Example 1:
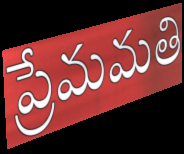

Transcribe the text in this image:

ప్రేమమతి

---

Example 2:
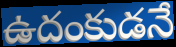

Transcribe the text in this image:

ఉదంకుడనే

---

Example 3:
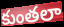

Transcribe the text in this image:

కుంతలా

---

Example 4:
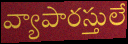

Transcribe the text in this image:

వ్యాపారస్తులే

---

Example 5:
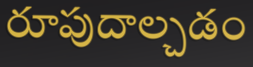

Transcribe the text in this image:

రూపుదాల్చడం